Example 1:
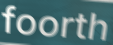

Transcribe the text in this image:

foorth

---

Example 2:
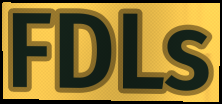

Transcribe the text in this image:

FDLs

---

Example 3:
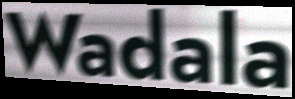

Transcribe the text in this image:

Wadala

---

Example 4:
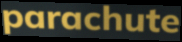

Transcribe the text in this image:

parachute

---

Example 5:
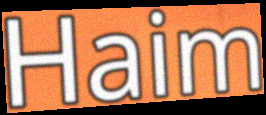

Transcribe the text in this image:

Haim